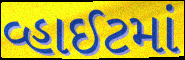
વ્હાઈટમાં